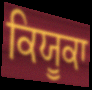
ਕਿਯੂਕਾ